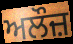
ਅਲੌਜ਼